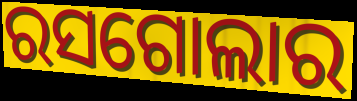
ରସଗୋଲାର